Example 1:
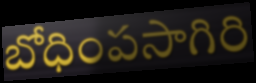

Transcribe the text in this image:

బోధింపసాగిరి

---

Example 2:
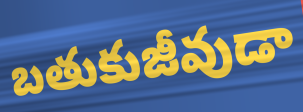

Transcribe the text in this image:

బతుకుజీవుడా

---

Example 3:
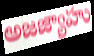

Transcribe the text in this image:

అజజ్యాహు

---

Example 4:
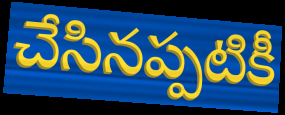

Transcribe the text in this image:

చేసినప్పటికీ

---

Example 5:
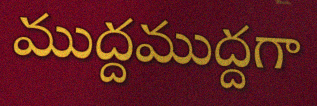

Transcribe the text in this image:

ముద్దముద్దగా